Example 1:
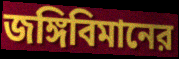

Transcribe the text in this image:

জঙ্গিবিমানের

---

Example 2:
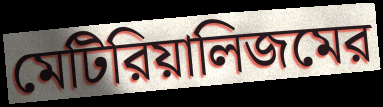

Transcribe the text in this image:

মেটিরিয়ালিজমের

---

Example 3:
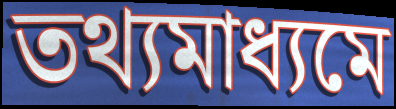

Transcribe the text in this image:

তথ্যমাধ্যমে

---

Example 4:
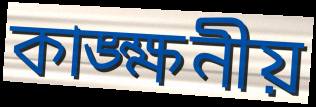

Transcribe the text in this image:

কাঙ্ক্ষনীয়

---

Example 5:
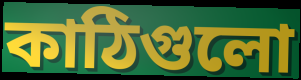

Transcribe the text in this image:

কাঠিগুলো